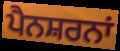
ਪੈਨਸ਼ਰਨਾਂ